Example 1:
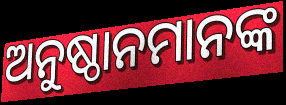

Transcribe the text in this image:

ଅନୁଷ୍ଠାନମାନଙ୍କ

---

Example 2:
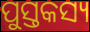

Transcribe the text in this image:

ପୁସ୍ତକସ୍ୟ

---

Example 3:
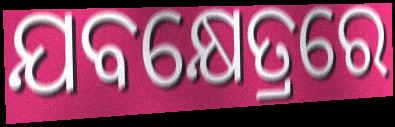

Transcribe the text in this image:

ଯବକ୍ଷେତ୍ରରେ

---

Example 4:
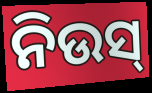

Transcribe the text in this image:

ନିଉସ୍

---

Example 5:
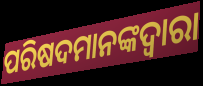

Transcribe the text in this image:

ପରିଷଦମାନଙ୍କଦ୍ୱାରା